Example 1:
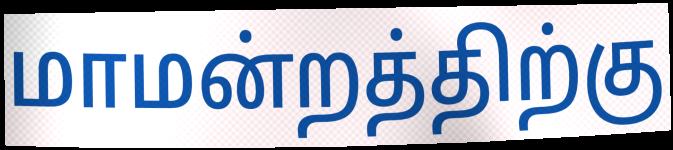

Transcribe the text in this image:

மாமன்றத்திற்கு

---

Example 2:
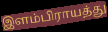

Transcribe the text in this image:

இளம்பிராயத்து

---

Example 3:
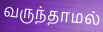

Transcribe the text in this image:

வருந்தாமல்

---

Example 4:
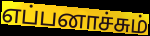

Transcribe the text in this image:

எப்பனாச்சும்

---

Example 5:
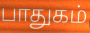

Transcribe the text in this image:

பாதுகம்